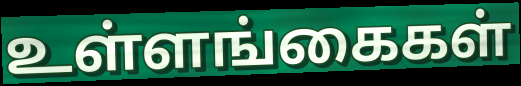
உள்ளங்கைகள்